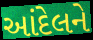
આંદેલને